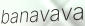
banavava